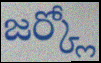
జర్క్లో